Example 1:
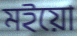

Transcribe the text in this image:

মইয়ো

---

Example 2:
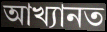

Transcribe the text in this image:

আখ্যানত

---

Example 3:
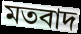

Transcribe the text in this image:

মতবাদ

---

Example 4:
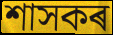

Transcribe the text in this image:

শাসকৰ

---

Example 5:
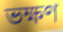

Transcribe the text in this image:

ভক্ষণ